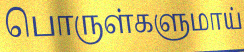
பொருள்களுமாய்